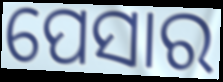
ପେସାର